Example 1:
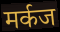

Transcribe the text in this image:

मर्कज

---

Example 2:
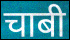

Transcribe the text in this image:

चाबी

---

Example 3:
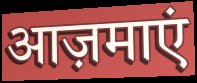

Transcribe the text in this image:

आज़माएं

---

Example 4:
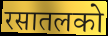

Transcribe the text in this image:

रसातलको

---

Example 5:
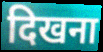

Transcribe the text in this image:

दिखना